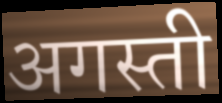
अगस्ती